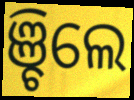
ଞ୍ଚିଲେ